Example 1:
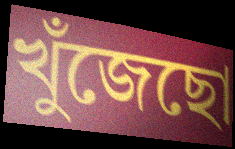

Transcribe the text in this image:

খুঁজেছো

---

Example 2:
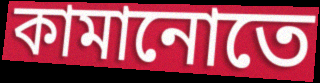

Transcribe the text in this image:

কামানোতে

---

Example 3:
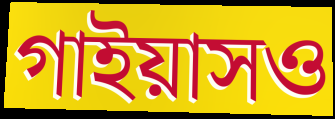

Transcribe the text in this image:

গাইয়াসও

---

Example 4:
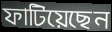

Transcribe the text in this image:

ফাটিয়েছেন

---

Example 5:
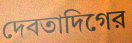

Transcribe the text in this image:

দেবতাদিগের